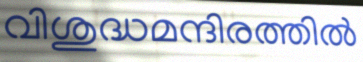
വിശുദ്ധമന്ദിരത്തിൽ